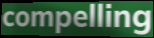
compelling